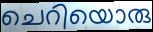
ചെറിയൊരു